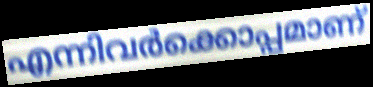
എന്നിവർക്കൊപ്പമാണ്